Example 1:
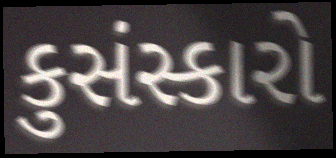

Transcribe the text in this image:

કુસંસ્કારો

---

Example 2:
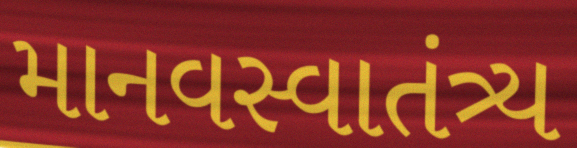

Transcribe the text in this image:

માનવસ્વાતંત્ર્ય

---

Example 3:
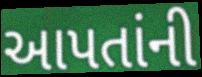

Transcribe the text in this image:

આપતાંની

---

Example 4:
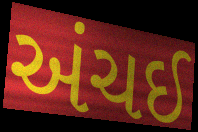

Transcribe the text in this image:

અંચઈ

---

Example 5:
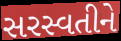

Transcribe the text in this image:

સરસ્વતીને